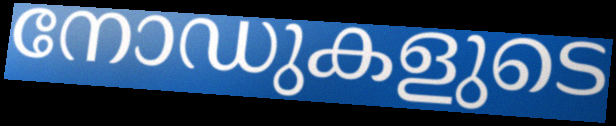
നോഡുകളുടെ